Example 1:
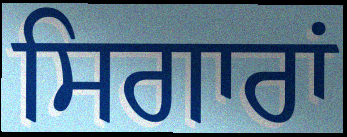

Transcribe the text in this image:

ਸਿਗਾਰਾਂ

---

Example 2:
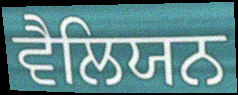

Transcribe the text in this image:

ਵੈਲਿਯਨ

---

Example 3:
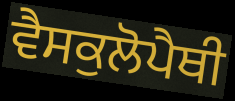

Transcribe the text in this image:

ਵੈਸਕੁਲੋਪੈਥੀ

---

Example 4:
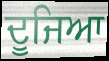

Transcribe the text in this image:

ਦੂਜਿਆ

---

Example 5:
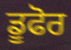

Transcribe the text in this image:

ਡੂਫੋਰ